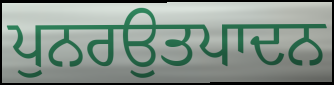
ਪੁਨਰਉਤਪਾਦਨ